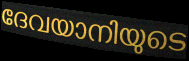
ദേവയാനിയുടെ